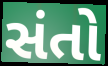
સંતો